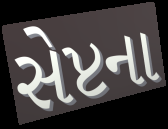
સેપ્ટના